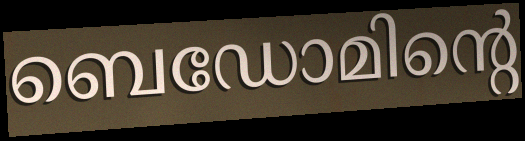
ബെഡോമിന്റെ